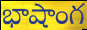
భాషాంగ